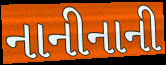
નાનીનાની